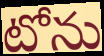
టోను